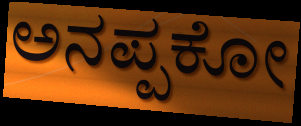
ಅನಪ್ಪಕೋ